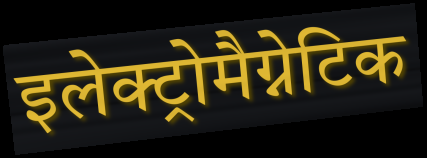
इलेक्ट्रोमैग्नेटिक